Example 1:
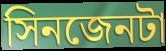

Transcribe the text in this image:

সিনজেনটা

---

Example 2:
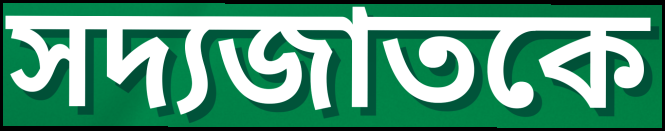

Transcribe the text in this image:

সদ্যজাতকে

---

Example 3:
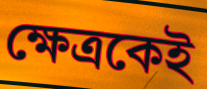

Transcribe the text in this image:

ক্ষেত্রকেই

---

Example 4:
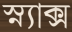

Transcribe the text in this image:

স্ন্যাক্স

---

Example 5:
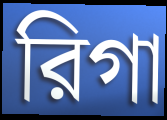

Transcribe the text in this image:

রিগা